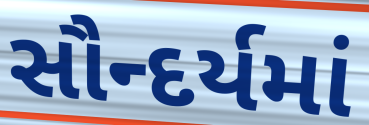
સૌન્દર્યમાં